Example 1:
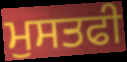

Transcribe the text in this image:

ਮੁਸਤਫੀ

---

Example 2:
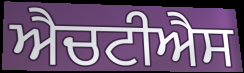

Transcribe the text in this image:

ਐਚਟੀਐਸ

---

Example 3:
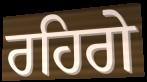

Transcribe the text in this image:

ਰਹਿਗੇ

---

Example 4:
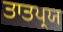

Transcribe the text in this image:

ਤਾਤਪ੍ਰਯ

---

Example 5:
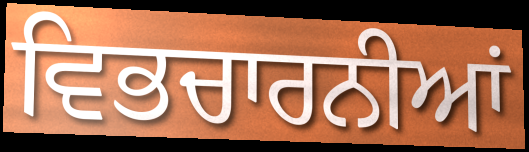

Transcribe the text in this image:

ਵਿਭਚਾਰਨੀਆਂ